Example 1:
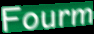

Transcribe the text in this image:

Fourm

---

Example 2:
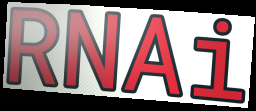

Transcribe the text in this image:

RNAi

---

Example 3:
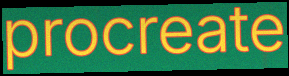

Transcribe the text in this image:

procreate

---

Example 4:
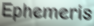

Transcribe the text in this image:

Ephemeris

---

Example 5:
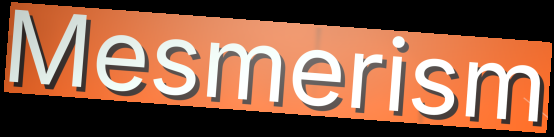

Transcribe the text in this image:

Mesmerism